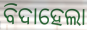
ବିଦାହେଲା